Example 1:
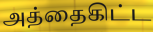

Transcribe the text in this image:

அத்தைகிட்ட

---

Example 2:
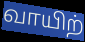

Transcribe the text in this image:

வாயிற்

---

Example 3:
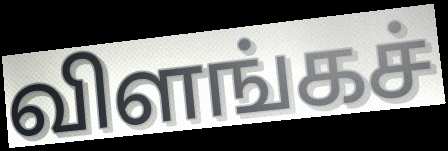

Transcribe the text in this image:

விளங்கச்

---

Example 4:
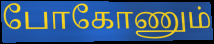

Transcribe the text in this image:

போகோணும்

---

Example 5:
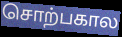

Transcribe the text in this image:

சொற்பகால